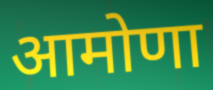
आमोणा